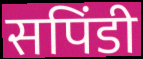
सपिंडी